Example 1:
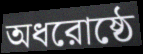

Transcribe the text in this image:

অধরোষ্ঠে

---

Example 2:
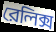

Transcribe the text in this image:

রেলিক্স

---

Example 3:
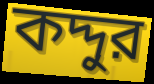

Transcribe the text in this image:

কদ্দুর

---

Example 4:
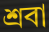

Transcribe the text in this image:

শ্রবা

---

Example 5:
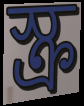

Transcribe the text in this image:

স্ক্র